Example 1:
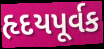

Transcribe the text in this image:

હૃદયપૂર્વક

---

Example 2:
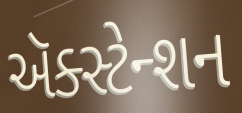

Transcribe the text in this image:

ઍક્સ્ટેન્શન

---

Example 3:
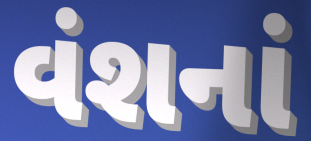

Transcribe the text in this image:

વંશનાં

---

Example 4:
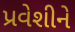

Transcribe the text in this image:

પ્રવેશીને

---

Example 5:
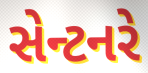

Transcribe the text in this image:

સેન્ટનરે